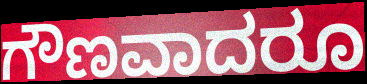
ಗೌಣವಾದರೂ